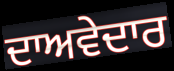
ਦਾਅਵੇਦਾਰ